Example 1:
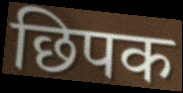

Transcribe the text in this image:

छिपक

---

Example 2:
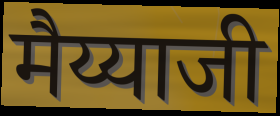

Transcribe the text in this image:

मैय्याजी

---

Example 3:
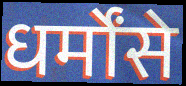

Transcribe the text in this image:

धर्मोंसे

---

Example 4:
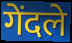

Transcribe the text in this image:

गेंदले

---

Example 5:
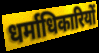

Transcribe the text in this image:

धर्माधिकारियों